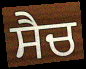
ਸੈਚ